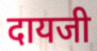
दायजी